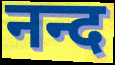
नन्द